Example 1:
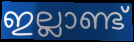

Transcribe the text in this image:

ഇല്ലാണ്ട്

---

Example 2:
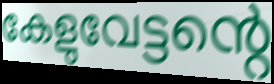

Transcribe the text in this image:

കേളുവേട്ടന്റെ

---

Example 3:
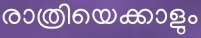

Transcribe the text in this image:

രാത്രിയെക്കാളും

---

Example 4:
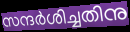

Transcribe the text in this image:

സന്ദർശിച്ചതിനു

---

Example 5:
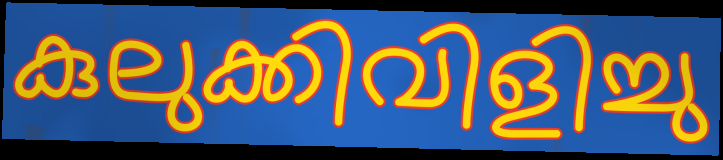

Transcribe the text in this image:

കുലുക്കിവിളിച്ചു